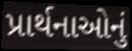
પ્રાર્થનાઓનું